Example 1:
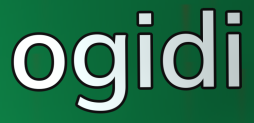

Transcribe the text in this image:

ogidi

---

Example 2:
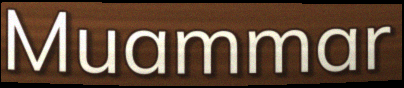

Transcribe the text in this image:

Muammar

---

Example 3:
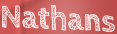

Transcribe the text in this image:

Nathans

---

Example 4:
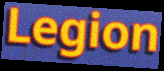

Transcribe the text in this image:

Legion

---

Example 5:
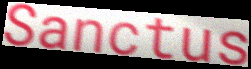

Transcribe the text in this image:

Sanctus